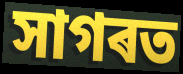
সাগৰত